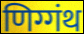
णिग्गंथ